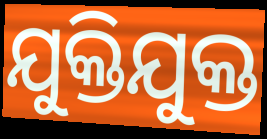
ଯୁକ୍ତିଯୁକ୍ତ